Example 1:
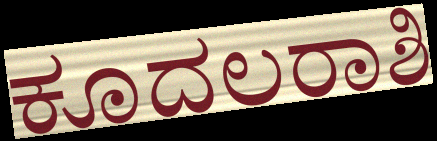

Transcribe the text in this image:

ಕೂದಲರಾಶಿ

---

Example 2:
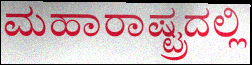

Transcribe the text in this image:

ಮಹಾರಾಷ್ಟ್ರದಲ್ಲಿ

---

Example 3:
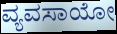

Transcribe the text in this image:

ವ್ಯವಸಾಯೋ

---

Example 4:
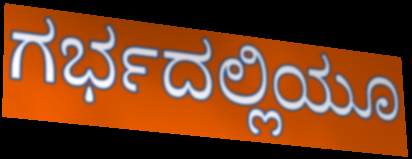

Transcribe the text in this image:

ಗರ್ಭದಲ್ಲಿಯೂ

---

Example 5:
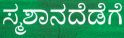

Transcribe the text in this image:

ಸ್ಮಶಾನದೆಡೆಗೆ